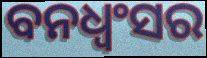
ବନଧ୍ଵଂସର